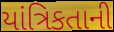
યાંત્રિકતાની